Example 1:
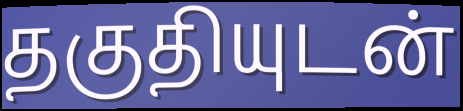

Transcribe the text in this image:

தகுதியுடன்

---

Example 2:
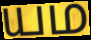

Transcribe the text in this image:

யம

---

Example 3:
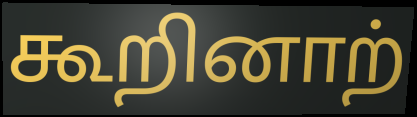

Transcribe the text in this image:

கூறினாற்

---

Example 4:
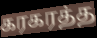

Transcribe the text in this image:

கரகரத்த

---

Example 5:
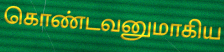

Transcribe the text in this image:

கொண்டவனுமாகிய